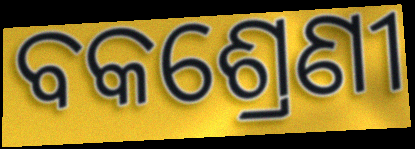
ବକଶ୍ରେଣୀ